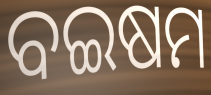
ବଇଷମ